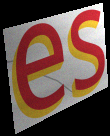
es